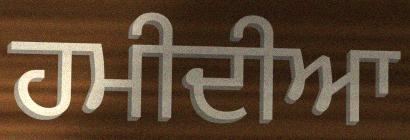
ਹਮੀਦੀਆ